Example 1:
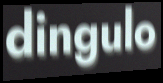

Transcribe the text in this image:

dingulo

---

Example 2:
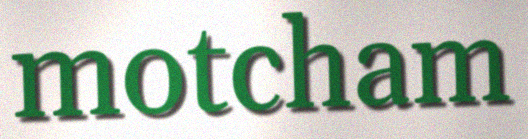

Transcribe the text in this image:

motcham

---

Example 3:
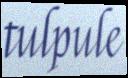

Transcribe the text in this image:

tulpule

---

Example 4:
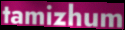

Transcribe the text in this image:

tamizhum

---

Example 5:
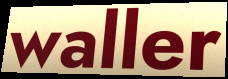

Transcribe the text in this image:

waller